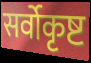
सर्वोकृष्ट